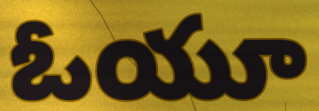
ఓయూ